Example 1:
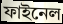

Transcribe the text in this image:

ফাইনেল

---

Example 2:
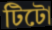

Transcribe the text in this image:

টিটো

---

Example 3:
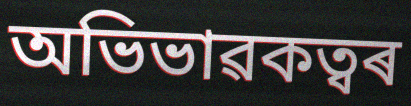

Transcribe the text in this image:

অভিভাৱকত্বৰ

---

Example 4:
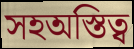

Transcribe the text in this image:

সহঅস্তিত্ব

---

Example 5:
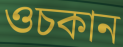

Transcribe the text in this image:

ওচকান